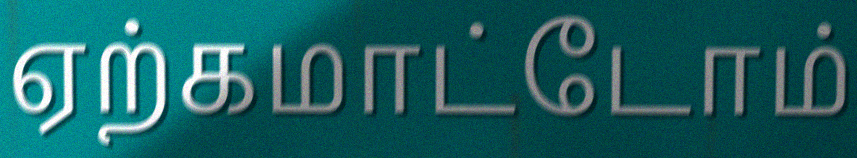
ஏற்கமாட்டோம்